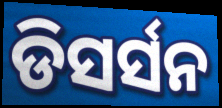
ଡିସର୍ସନ